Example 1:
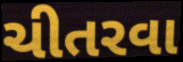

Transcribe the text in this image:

ચીતરવા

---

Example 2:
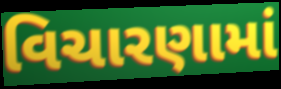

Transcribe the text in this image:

વિચારણામાં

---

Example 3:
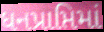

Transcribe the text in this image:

ધનપ્રાપ્તિમાં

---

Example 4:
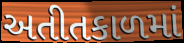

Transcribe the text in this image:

અતીતકાળમાં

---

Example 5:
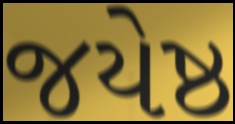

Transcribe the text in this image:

જયેષ્ઠ